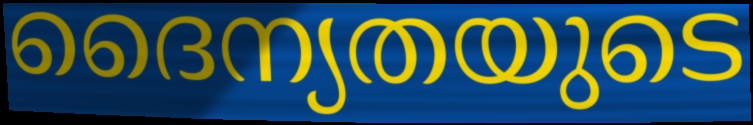
ദൈന്യതയുടെ